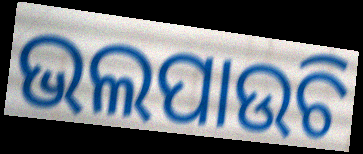
ଭଲପାଉଚି